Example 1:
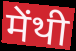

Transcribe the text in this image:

मेंथी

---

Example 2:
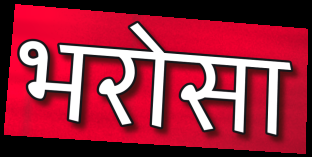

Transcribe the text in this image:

भरोसा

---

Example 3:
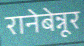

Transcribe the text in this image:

रानेबेन्नूर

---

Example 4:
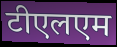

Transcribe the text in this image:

टीएलएम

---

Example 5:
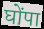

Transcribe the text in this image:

घोंपा